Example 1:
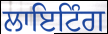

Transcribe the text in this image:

ਲਾਇਟਿੰਗ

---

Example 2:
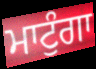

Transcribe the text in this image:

ਮਾਟੁੰਗਾ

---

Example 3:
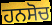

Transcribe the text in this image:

ਹਨਸੋਚ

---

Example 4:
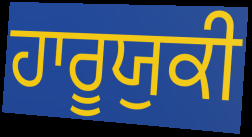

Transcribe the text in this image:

ਹਾਰੂਯੁਕੀ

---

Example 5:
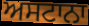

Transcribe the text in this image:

ਅਸਟਾਨਾ